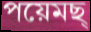
পয়েমছ্